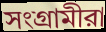
সংগ্রামীরা